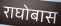
राघोबास